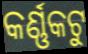
କର୍ଣ୍ଣକଟୁ